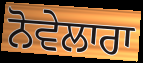
ਨੋਵੇਲਾਰਾ